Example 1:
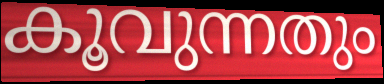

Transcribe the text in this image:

കൂവുന്നതും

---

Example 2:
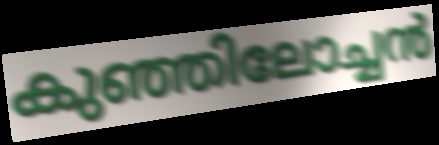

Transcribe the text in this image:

കുഞ്ഞിലോച്ചൻ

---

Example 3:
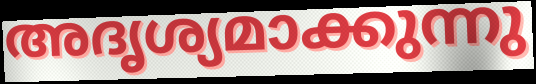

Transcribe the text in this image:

അദൃശ്യമാക്കുന്നു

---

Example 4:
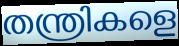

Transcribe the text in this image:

തന്ത്രികളെ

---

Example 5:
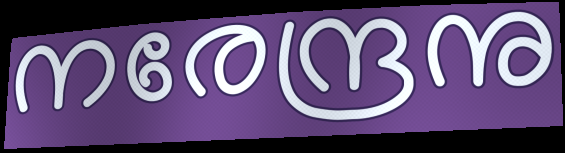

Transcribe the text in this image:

നരേന്ദ്രനു